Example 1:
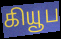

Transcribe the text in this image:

கியூப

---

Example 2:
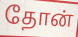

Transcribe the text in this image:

தோன்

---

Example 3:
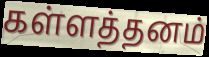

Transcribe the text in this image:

கள்ளத்தனம்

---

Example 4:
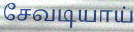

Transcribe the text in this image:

சேவடியாய்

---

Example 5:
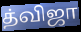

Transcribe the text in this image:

த்விஜா